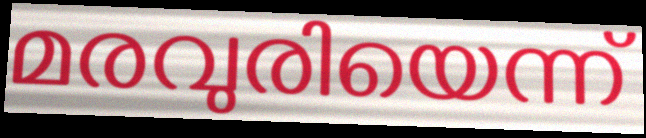
മരവുരിയെന്ന്